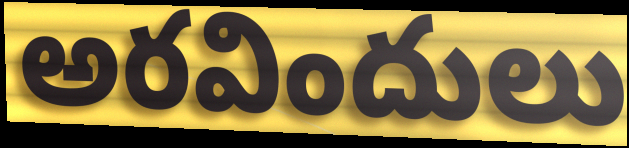
అరవిందులు